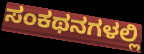
ಸಂಕಥನಗಳಲ್ಲಿ